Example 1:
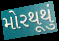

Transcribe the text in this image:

મોરથૂથું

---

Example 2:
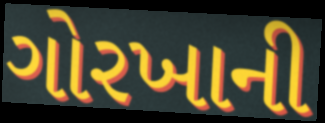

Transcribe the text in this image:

ગોરખાની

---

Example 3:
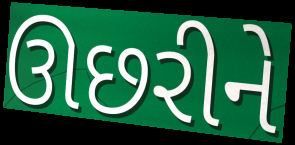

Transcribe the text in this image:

ઊછરીને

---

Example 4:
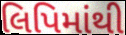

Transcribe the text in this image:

લિપિમાંથી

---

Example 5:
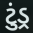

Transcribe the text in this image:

ટુંડ્ર